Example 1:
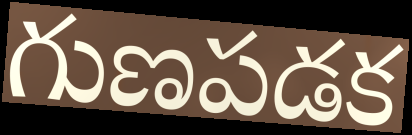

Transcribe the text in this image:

గుణపడక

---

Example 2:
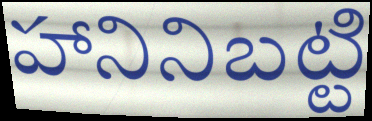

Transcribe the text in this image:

హానినిబట్టి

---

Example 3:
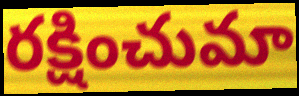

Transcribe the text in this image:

రక్షించుమా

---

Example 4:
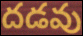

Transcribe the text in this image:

దడవు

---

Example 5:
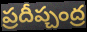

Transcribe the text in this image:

ప్రదీప్చంద్ర